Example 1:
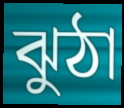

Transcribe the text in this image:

ঝুঠা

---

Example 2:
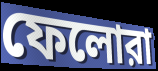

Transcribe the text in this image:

ফেলোরা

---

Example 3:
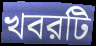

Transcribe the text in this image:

খবরটি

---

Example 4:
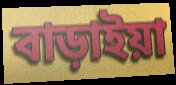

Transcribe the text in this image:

বাড়াইয়া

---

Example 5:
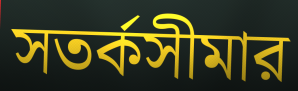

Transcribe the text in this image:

সতর্কসীমার